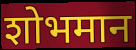
शोभमान